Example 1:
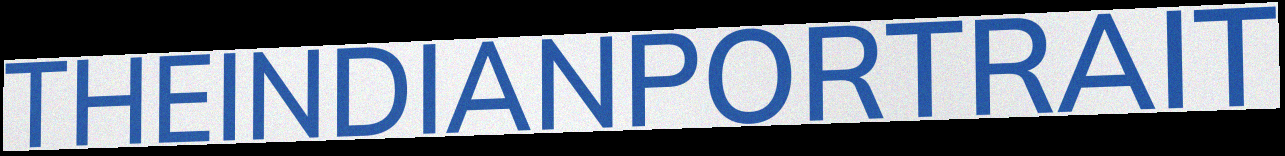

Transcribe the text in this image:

THEINDIANPORTRAIT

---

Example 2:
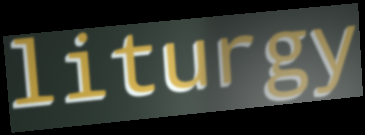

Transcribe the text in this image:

liturgy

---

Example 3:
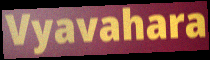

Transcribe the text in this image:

Vyavahara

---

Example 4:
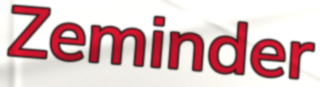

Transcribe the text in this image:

Zeminder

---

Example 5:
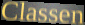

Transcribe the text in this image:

Classen